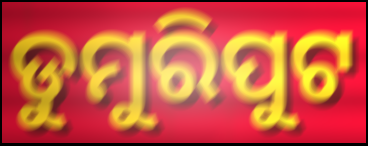
ଡୁମୁରିପୁଟ